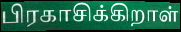
பிரகாசிக்கிறாள்